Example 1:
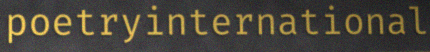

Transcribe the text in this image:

poetryinternational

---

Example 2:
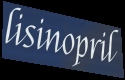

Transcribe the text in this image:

lisinopril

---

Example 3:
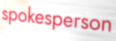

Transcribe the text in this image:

spokesperson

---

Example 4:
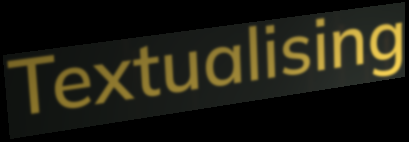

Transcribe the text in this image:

Textualising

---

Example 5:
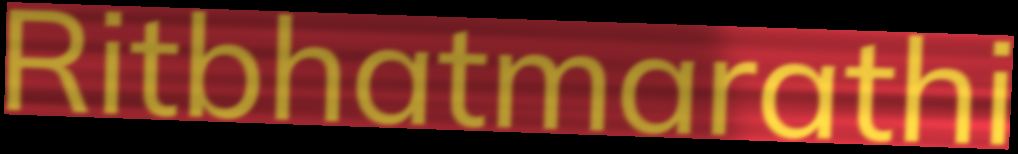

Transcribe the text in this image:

Ritbhatmarathi